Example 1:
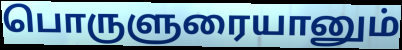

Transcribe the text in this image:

பொருளுரையானும்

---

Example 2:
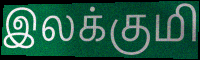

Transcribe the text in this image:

இலக்குமி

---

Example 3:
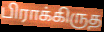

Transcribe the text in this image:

பிராக்கிருத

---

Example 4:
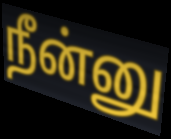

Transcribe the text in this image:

நீன்னு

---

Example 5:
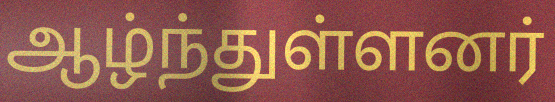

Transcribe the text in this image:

ஆழ்ந்துள்ளனர்